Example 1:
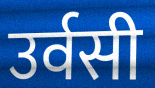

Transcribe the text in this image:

उर्वसी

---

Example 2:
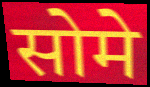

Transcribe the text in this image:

सोमे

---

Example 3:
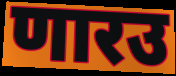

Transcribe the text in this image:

णारउ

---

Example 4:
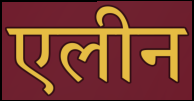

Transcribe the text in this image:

एलीन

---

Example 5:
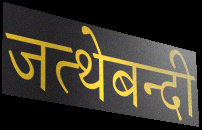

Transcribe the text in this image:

जत्थेबन्दी